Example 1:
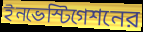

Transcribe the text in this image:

ইনভেস্টিগেশনের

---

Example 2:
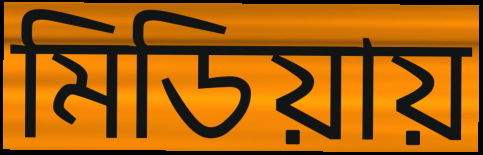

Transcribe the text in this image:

মিডিয়ায়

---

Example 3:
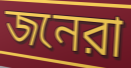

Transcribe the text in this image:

জনেরা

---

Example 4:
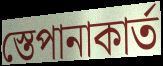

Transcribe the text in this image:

স্তেপানাকার্ত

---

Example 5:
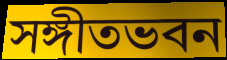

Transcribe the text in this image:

সঙ্গীতভবন